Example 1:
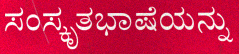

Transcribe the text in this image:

ಸಂಸ್ಕೃತಭಾಷೆಯನ್ನು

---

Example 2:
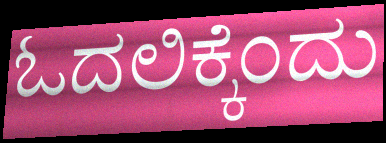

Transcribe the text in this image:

ಓದಲಿಕ್ಕೆಂದು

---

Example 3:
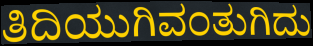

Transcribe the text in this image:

ತಿದಿಯುಗಿವಂತುಗಿದು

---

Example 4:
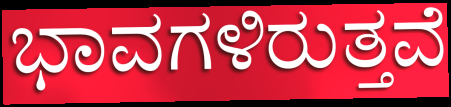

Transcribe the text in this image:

ಭಾವಗಳಿರುತ್ತವೆ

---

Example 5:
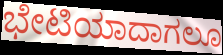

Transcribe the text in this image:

ಭೇಟಿಯಾದಾಗಲೂ